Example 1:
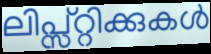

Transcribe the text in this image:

ലിപ്സ്റ്റിക്കുകൾ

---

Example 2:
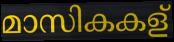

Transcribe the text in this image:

മാസികകള്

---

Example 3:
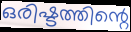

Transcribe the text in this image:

ഒരിഷ്ടത്തിന്റെ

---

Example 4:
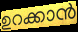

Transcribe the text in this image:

ഉറക്കാൻ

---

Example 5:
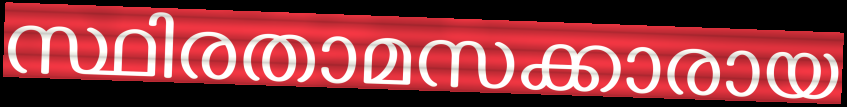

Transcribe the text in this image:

സ്ഥിരതാമസക്കാരായ